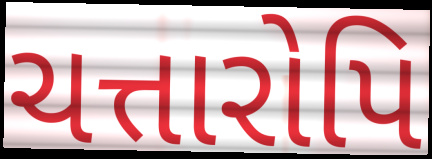
ચત્તારોપિ